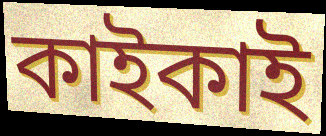
কাইকাই